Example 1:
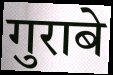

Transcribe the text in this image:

गुराबे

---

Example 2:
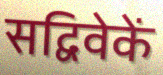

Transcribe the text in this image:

सद्विवेकें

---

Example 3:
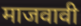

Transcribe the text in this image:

माजवावी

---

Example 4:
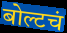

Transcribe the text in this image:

बोल्टचं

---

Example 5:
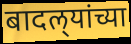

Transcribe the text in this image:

बादल्यांच्या